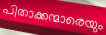
പിതാക്കന്മാരെയും